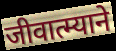
जीवात्म्याने